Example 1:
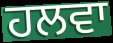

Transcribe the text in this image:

ਹਲਵਾ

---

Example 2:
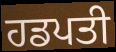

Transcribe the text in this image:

ਹਡਪਤੀ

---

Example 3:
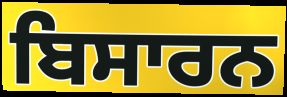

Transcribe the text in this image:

ਬਿਸਾਰਨ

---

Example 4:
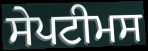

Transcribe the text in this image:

ਸੇਪਟੀਮਸ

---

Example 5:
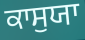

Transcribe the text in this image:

ਕਾਸੁਯਾ